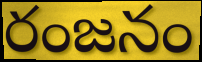
రంజనం